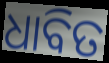
ଧାବିତ